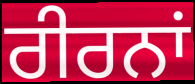
ਰੀਰਨਾਂ